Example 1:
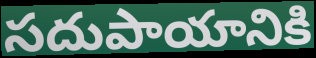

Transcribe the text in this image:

సదుపాయానికి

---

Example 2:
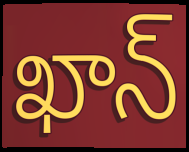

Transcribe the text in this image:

ఖాన్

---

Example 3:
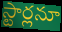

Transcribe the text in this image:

స్టార్లనూ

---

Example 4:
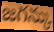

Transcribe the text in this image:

జగన్కు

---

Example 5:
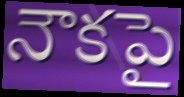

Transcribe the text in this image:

నౌకపై